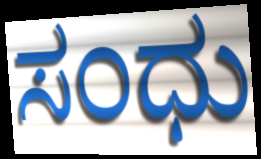
ಸಂಧು